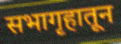
सभागृहातून